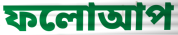
ফলোআপ